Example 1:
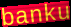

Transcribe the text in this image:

banku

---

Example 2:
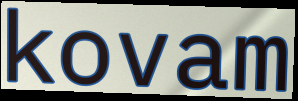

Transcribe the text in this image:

kovam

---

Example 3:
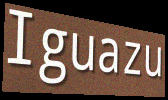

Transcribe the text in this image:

Iguazu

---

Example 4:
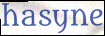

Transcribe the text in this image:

hasyne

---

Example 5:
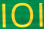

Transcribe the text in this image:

IOI